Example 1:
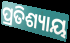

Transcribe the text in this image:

ପ୍ରତିଶ୍ୟାୟ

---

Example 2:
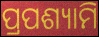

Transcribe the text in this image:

ପ୍ରପଶ୍ୟାମି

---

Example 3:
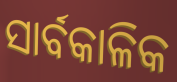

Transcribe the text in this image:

ସାର୍ବକାଳିକ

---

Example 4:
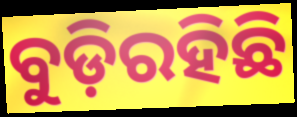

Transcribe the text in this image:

ବୁଡ଼ିରହିଛି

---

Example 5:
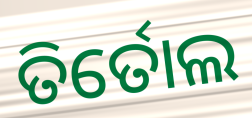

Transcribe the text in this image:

ତିର୍ତୋଲ